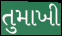
તુમાખી